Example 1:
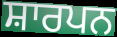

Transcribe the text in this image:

ਸ਼ਾਰਪਨ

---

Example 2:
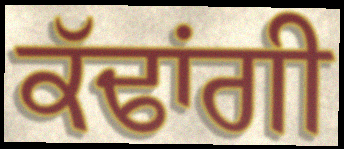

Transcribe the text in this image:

ਕੱਢਾਂਗੀ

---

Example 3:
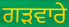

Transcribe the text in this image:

ਗੜਵਾਰੇ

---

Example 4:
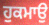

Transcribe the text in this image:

ਹੁਕਮਾਉ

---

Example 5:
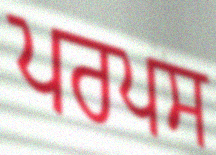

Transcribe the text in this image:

ਪਰਪਸ